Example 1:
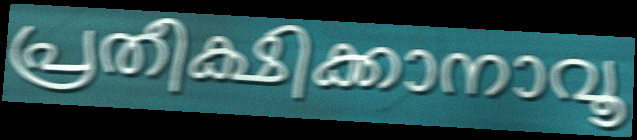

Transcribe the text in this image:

പ്രതീക്ഷിക്കാനാവൂ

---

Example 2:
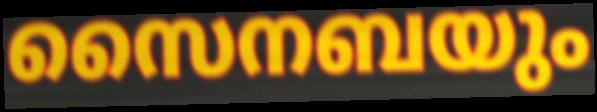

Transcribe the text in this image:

സൈനബയും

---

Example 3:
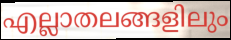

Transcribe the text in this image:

എല്ലാതലങ്ങളിലും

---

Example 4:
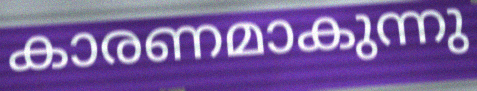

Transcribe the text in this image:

കാരണമാകുന്നു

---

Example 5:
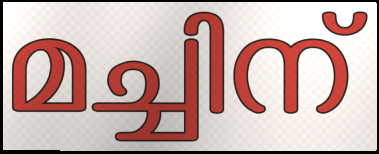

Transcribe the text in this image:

മച്ചിന്